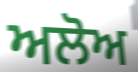
ਅਲੋਅ